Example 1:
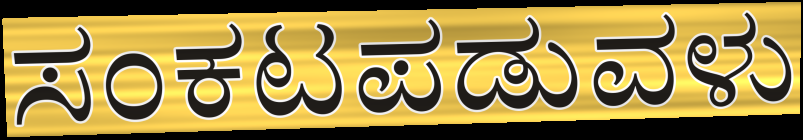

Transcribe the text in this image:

ಸಂಕಟಪಡುವಳು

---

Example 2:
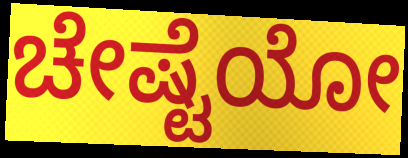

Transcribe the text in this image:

ಚೇಷ್ಟೆಯೋ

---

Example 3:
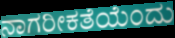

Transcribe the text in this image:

ನಾಗರೀಕತೆಯೆಂದು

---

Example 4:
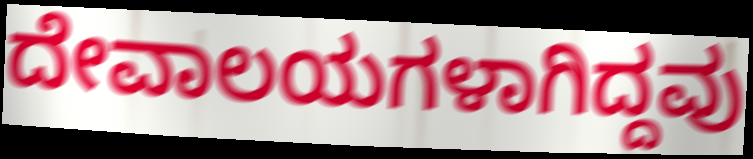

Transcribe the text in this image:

ದೇವಾಲಯಗಳಾಗಿದ್ದವು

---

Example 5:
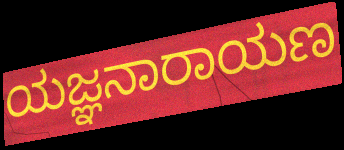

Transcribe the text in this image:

ಯಜ್ಞನಾರಾಯಣ